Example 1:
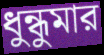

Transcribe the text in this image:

ধুন্ধুমার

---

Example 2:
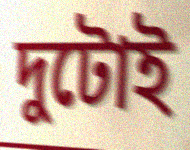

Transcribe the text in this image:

দুটোই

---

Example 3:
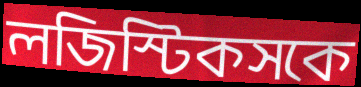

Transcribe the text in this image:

লজিস্টিকসকে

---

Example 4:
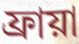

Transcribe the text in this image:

ফ্রায়া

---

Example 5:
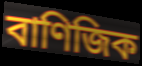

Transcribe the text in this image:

বাণিজিক